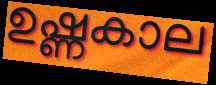
ഉഷ്ണകാല